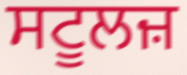
ਸਟੂਲਜ਼